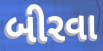
બીરવા